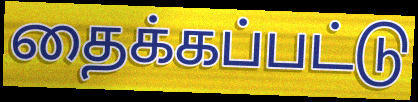
தைக்கப்பட்டு